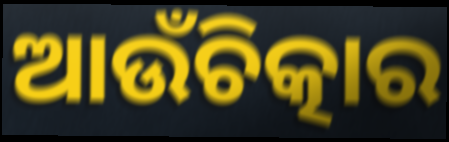
ଆଉଁଚିତ୍କାର